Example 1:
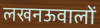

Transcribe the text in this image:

लखनऊवालों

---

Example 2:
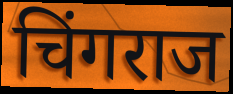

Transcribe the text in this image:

चिंगराज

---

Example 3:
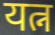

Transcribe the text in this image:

यत्न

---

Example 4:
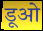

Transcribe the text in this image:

डूओ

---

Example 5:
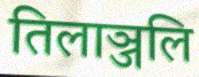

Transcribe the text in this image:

तिलाञ्जलि